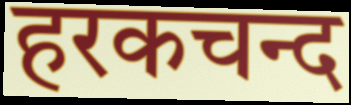
हरकचन्द